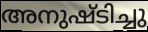
അനുഷ്ടിച്ചു